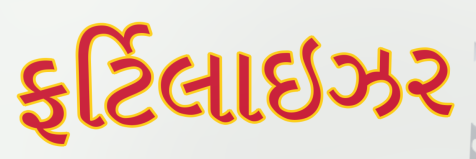
ફર્ટિલાઇઝર